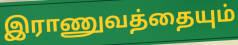
இராணுவத்தையும்